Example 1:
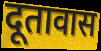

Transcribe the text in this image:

दूतावास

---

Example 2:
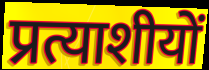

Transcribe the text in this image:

प्रत्याशीयों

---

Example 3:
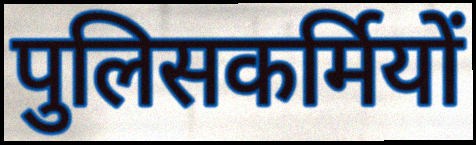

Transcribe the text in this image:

पुलिसकर्मियों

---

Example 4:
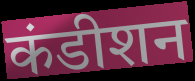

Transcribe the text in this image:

कंडीशन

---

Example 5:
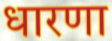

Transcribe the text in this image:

धारणा